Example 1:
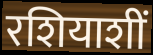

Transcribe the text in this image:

रशियाशीं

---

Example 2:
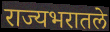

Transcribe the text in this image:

राज्यभरातले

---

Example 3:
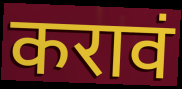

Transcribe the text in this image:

करावं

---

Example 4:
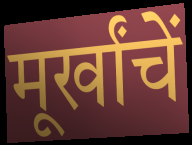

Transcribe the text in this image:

मूर्खांचें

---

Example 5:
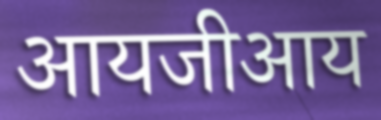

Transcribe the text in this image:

आयजीआय